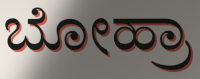
ಬೋಹ್ರಾ